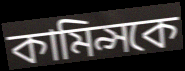
কামিন্সকে